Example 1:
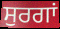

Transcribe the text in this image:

ਸੁਰਗਾਂ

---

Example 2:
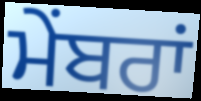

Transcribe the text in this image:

ਮੇਂਬਰਾਂ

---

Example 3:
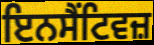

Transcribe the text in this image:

ਇਨਸੈਂਟਿਵਜ਼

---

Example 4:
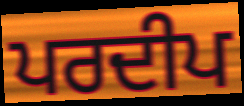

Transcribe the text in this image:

ਪਰਦੀਪ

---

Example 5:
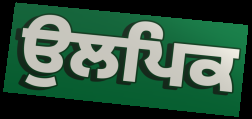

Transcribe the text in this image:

ਉਲਪਿਕ